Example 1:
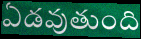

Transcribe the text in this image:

ఏడవుతుంది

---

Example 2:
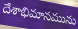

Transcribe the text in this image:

దేశాభిమానమును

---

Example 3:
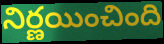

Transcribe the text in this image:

నిర్ణయించింది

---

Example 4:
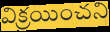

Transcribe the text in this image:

విక్రయించని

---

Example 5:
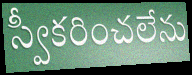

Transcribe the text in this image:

స్వీకరించలేను